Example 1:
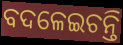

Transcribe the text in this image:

ବଦଳେଇଚନ୍ତି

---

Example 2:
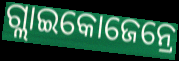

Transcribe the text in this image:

ଗ୍ଲାଇକୋଜେନ୍ରେ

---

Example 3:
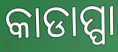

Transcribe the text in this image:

କାଡାପ୍ପା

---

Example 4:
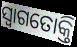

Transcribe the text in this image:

ସ୍ଵାଗତୋକ୍ତି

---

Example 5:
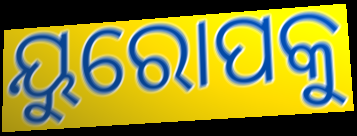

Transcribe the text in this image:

ୟୁରୋପକୁ